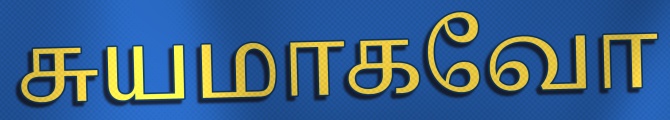
சுயமாகவோ